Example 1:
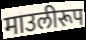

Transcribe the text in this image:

माउलीरूप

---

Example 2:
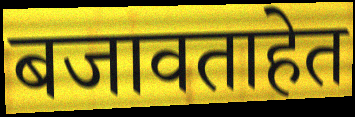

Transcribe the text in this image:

बजावताहेत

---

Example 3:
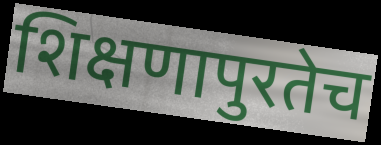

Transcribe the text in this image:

शिक्षणापुरतेच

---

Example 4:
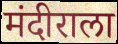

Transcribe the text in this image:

मंदीराला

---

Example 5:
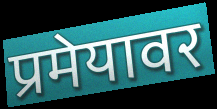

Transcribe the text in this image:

प्रमेयावर